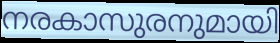
നരകാസുരനുമായി